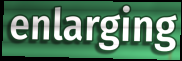
enlarging